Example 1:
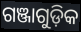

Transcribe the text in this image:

ଗଞ୍ଜାଗୁଡ଼ିକ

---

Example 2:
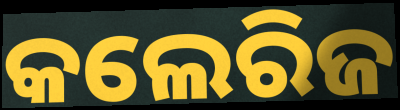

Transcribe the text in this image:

କଲେରିଜ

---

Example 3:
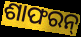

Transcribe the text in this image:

ଶାଫରନ୍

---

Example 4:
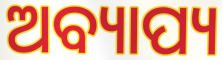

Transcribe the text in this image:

ଅବ୍ୟାପ୍ୟ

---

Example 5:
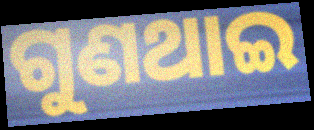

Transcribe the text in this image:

ଗୁଣଥାଇ